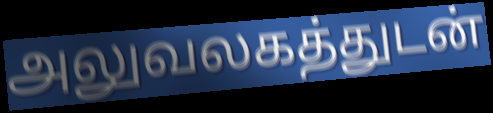
அலுவலகத்துடன்